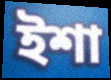
ইশা